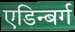
एडिन्बर्ग